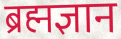
ब्रह्मज्ञान